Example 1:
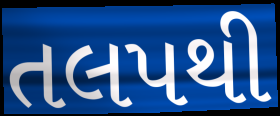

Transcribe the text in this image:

તલપથી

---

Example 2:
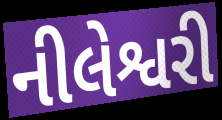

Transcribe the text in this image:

નીલેશ્વરી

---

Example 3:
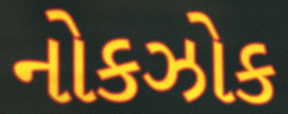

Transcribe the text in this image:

નોકઝોક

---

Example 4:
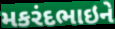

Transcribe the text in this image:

મકરંદભાઇને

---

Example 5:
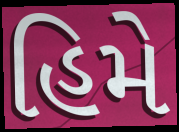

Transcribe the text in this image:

હિમે